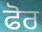
ਫੋਰ